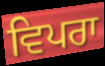
ਵਿਪਰਾ